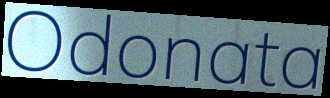
Odonata